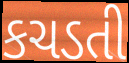
કચડતી